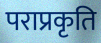
पराप्रकृति